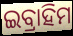
ଇବ୍ରାହିମ